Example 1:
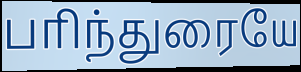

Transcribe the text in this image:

பரிந்துரையே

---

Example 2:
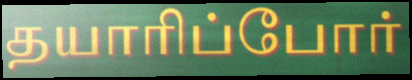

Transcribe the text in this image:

தயாரிப்போர்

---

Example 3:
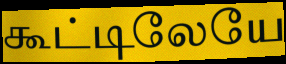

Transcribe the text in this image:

கூட்டிலேயே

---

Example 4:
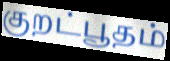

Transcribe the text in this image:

குறட்பூதம்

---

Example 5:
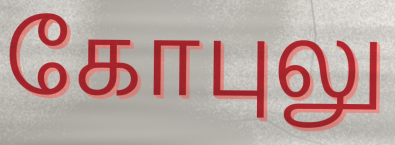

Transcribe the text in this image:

கோபுலு